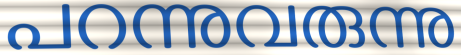
പറന്നുവരുന്നു